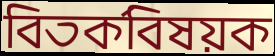
বিতর্কবিষয়ক